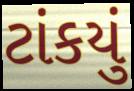
ટાંકયું